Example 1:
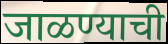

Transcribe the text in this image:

जाळण्याची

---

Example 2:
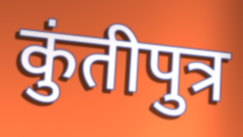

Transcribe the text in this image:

कुंतीपुत्र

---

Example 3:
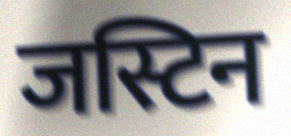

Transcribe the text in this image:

जस्टिन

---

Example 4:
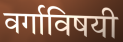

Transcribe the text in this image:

वर्गाविषयी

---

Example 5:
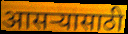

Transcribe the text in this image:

आसऱ्यासाठी